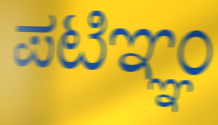
ಪಟಿಞ್ಞಂ